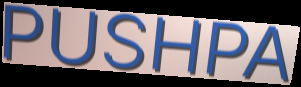
PUSHPA